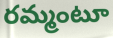
రమ్మంటూ